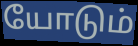
யோடும்